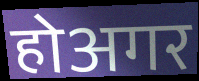
होअगर